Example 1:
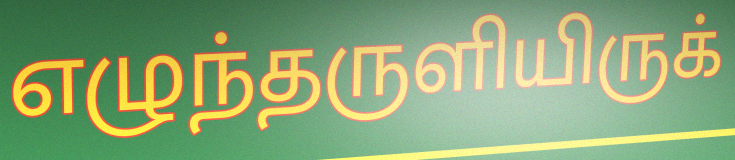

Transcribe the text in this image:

எழுந்தருளியிருக்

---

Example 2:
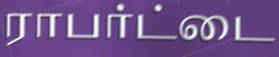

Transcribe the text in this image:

ராபர்ட்டை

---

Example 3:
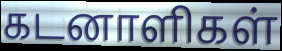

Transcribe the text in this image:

கடனாளிகள்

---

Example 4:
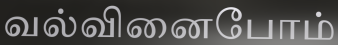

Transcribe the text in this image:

வல்வினைபோம்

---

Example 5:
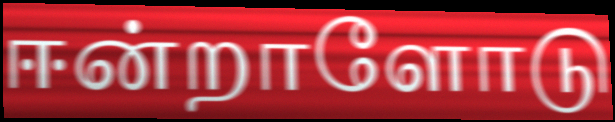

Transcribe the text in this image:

ஈன்றாளோடு